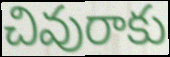
చివురాకు